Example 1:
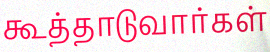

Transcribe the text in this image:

கூத்தாடுவார்கள்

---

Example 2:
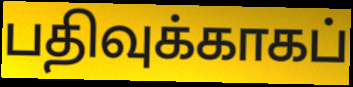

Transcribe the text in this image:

பதிவுக்காகப்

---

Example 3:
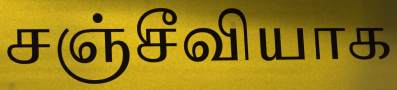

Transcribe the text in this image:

சஞ்சீவியாக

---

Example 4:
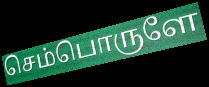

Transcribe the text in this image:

செம்பொருளே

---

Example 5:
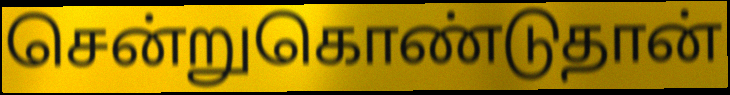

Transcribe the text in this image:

சென்றுகொண்டுதான்